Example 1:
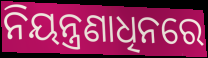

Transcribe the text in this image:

ନିୟନ୍ତ୍ରଣାଧିନରେ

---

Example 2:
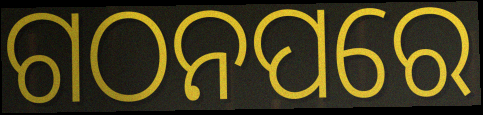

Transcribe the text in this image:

ଗଠନପରେ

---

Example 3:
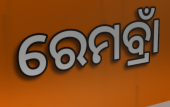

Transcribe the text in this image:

ରେମବ୍ରାଁ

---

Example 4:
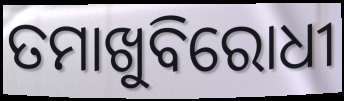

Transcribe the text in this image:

ତମାଖୁବିରୋଧୀ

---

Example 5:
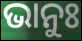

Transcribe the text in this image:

ଭାନୁଃ